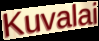
Kuvalai